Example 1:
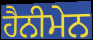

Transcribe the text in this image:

ਹੈਨੀਮੇਨ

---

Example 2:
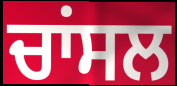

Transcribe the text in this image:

ਚਾਂਸਲ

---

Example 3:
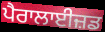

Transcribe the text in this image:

ਪੈਰਾਲਾਈਜ਼ਡ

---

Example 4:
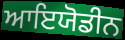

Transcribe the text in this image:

ਆਇਯੋਡੀਨ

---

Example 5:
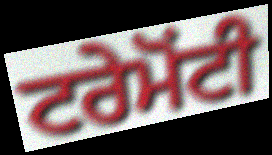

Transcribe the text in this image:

ਟਰੇਮੋਂਟੀ